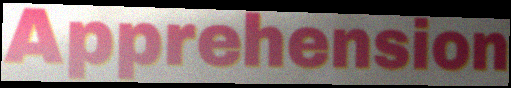
Apprehension